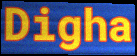
Digha